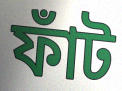
ফাঁট